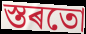
স্তৰতো